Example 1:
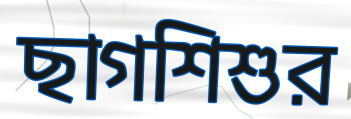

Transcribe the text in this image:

ছাগশিশুর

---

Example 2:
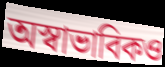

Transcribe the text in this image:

অস্বাভাবিকও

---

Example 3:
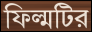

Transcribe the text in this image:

ফিল্মটির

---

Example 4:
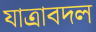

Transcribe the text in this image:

যাত্রাবদল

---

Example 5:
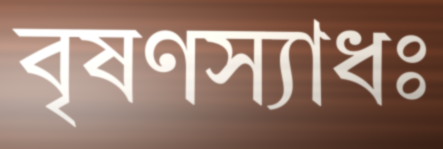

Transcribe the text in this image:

বৃষণস্যাধঃ